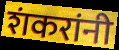
शंकरांनी